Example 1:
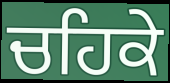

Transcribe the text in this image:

ਚਹਿਕੇ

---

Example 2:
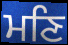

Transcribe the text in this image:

ਮਣਿ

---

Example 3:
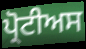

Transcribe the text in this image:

ਪ੍ਰੋਟੀਅਸ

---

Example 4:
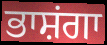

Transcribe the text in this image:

ਭਾਸ਼ਂਗਾ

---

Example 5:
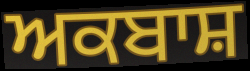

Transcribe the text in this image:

ਅਕਬਾਸ਼